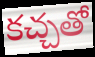
కచ్చతో